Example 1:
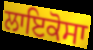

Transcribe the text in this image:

ਲਾਇਕੋਸਾ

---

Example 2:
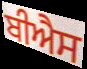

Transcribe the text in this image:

ਬੀਐਸ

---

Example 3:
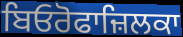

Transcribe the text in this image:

ਬਿਓਰੋਫਾਜ਼ਿਲਕਾ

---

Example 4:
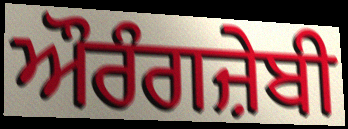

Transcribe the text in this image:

ਔਰੰਗਜ਼ੇਬੀ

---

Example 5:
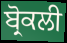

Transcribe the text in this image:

ਬ੍ਰੋਕਲੀ